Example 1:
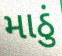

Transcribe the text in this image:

માઠું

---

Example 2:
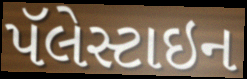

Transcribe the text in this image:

પૅલેસ્ટાઇન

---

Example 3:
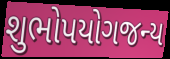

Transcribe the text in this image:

શુભોપયોગજન્ય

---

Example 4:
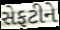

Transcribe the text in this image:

સેફટીને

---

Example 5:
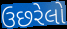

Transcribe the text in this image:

ઉછરેલો